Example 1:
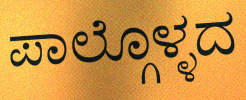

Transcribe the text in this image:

ಪಾಲ್ಗೊಳ್ಳದ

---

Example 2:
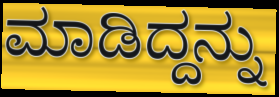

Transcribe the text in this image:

ಮಾಡಿದ್ದನ್ನು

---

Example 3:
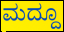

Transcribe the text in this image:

ಮದ್ದೂ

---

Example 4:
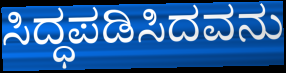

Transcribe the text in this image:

ಸಿದ್ಧಪಡಿಸಿದವನು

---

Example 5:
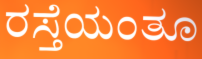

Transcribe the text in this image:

ರಸ್ತೆಯಂತೂ